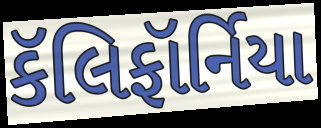
કૅલિફૉર્નિયા